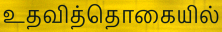
உதவித்தொகையில்